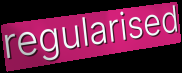
regularised